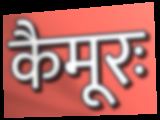
कैमूरः